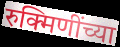
रुक्मिणींच्या